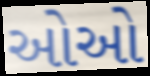
ઓઓ